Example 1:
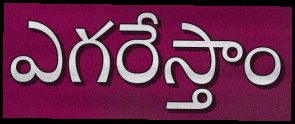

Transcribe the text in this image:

ఎగరేస్తాం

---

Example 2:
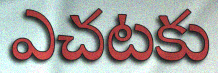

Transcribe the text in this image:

ఎచటకు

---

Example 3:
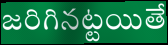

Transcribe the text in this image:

జరిగినట్టయితే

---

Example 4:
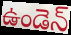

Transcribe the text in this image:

ఉండెన్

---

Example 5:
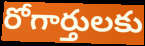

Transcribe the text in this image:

రోగార్తులకు